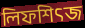
লিফশিৎজ